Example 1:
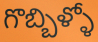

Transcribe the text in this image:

గొబ్బిళ్ళో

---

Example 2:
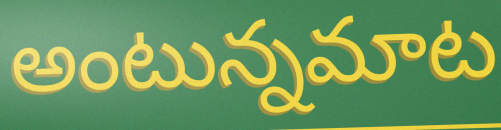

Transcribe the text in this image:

అంటున్నమాట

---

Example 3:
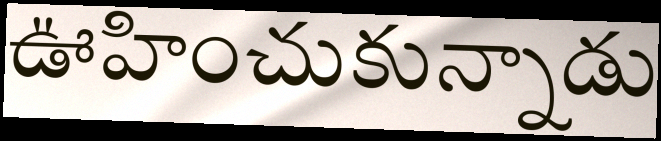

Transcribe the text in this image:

ఊహించుకున్నాడు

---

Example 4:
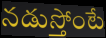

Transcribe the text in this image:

నడుస్తోంటే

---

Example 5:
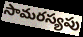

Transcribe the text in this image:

సామరస్యపు